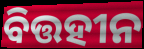
ବିତ୍ତହୀନ